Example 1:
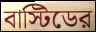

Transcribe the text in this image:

বাস্টিডের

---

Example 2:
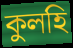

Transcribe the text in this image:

কুলহি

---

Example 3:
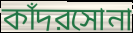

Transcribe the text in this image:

কাঁদরসোনা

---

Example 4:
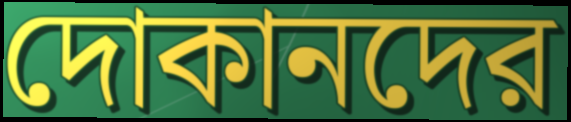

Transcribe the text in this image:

দোকানদের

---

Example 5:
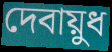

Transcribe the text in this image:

দেবায়ুধ